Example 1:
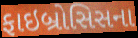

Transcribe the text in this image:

ફાઇબ્રોસિસના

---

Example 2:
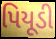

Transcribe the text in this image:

પિયૂડી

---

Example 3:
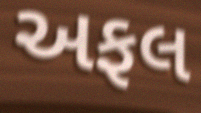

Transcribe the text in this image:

અફલ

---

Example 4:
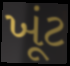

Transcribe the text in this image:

ખૂંટ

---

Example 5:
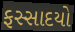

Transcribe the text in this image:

ફસ્સાદયો